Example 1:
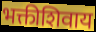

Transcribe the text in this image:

भक्तीशिवाय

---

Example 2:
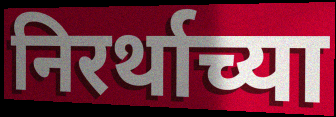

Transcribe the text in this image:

निरर्थाच्या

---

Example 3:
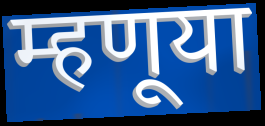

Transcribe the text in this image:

म्हणूया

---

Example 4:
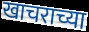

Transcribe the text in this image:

खाचराच्या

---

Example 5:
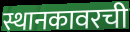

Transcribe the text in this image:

स्थानकावरची